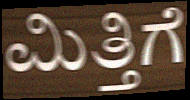
ಮಿತ್ತಿಗೆ